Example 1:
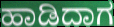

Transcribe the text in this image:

ಹಾಡಿದಾಗ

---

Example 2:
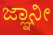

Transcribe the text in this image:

ಜ್ಞಾನೀ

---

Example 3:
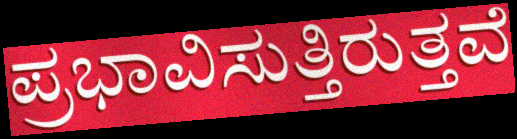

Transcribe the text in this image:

ಪ್ರಭಾವಿಸುತ್ತಿರುತ್ತವೆ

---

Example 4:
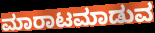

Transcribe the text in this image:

ಮಾರಾಟಮಾಡುವ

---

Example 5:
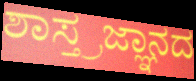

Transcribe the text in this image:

ಶಾಸ್ತ್ರಜ್ಞಾನದ